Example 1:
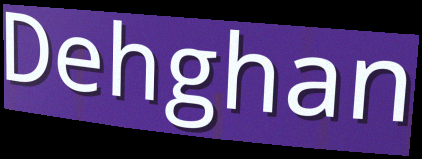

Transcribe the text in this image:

Dehghan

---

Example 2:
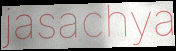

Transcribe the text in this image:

jasachya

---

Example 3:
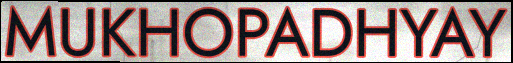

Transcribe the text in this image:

MUKHOPADHYAY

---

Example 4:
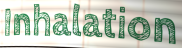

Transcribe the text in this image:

Inhalation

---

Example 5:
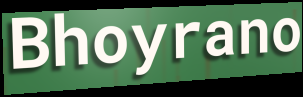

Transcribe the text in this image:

Bhoyrano